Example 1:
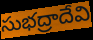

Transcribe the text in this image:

సుభద్రాదేవి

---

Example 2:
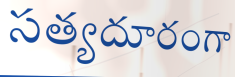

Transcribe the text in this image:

సత్యదూరంగా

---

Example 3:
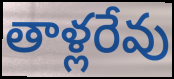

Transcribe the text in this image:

తాళ్లరేవు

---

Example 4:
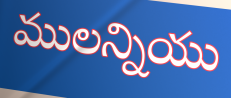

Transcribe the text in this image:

ములన్నియు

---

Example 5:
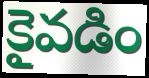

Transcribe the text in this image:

కైవడిం